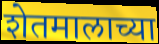
शेतमालाच्या